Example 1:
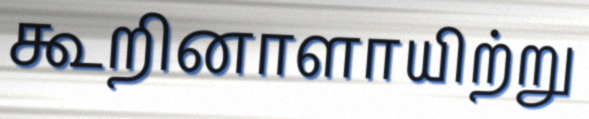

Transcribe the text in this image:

கூறினாளாயிற்று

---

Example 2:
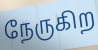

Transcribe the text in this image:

நேருகிற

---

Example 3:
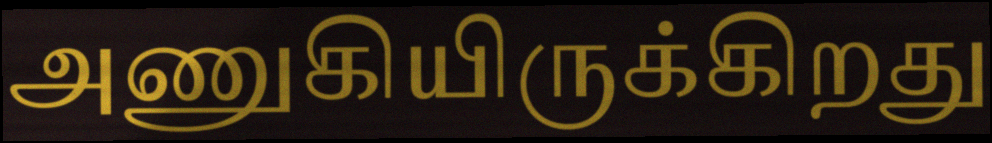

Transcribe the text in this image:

அணுகியிருக்கிறது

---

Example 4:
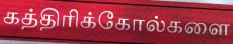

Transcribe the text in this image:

கத்திரிக்கோல்களை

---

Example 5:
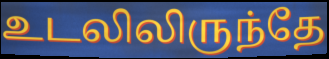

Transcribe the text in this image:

உடலிலிருந்தே